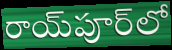
రాయ్‌పూర్‌లో